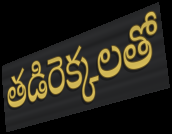
తడిరెక్కలతో